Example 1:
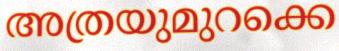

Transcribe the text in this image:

അത്രയുമുറക്കെ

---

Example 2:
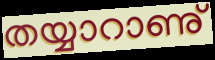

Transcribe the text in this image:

തയ്യാറാണു്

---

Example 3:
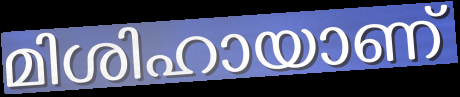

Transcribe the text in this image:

മിശിഹായാണ്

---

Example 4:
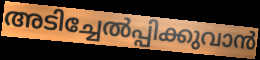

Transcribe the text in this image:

അടിച്ചേൽപ്പിക്കുവാൻ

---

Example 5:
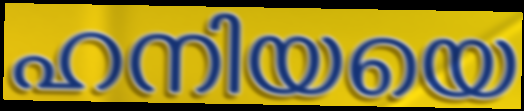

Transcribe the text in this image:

ഹനിയയെ